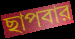
ছাপবার